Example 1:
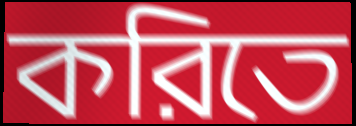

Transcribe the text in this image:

করিতে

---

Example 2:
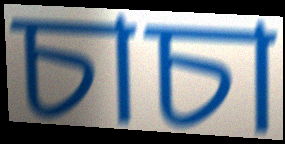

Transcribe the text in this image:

চাচা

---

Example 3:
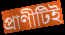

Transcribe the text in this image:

প্রাণীটিই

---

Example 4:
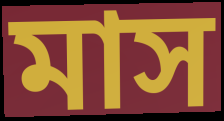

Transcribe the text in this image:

মাস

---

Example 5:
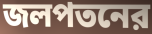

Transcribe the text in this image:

জলপতনের